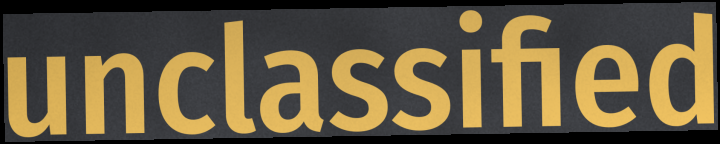
unclassified